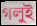
গলুই